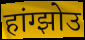
हांग्झोउ